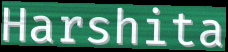
Harshita